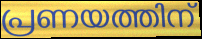
പ്രണയത്തിന്